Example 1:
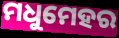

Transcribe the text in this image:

ମଧୁମେହର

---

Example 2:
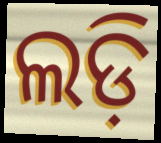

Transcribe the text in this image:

ଲଡ଼ି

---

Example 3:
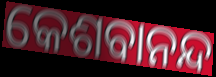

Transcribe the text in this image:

କେଶବାନନ୍ଦ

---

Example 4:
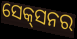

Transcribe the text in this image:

ସେକ୍‍ସନର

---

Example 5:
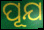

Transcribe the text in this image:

ପୂଯ